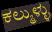
ಕಲ್ಮುಳ್ಳು